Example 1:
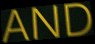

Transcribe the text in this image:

AND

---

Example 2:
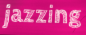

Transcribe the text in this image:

jazzing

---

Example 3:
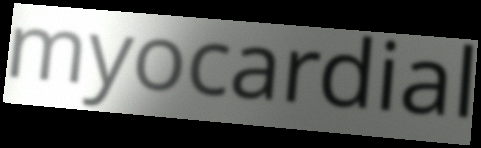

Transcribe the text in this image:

myocardial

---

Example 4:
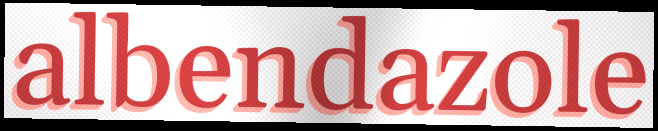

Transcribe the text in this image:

albendazole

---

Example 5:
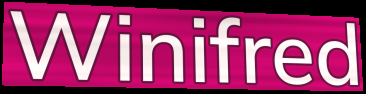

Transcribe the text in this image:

Winifred